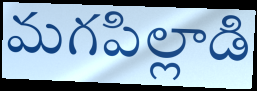
మగపిల్లాడి